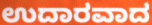
ಉದಾರವಾದ